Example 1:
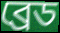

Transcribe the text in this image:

ব্ৰেড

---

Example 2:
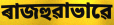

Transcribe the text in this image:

ৰাজহুৱাভাৱে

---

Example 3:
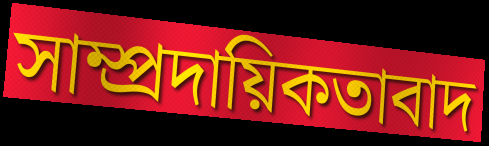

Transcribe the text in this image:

সাম্প্ৰদায়িকতাবাদ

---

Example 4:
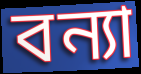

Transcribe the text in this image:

বন্যা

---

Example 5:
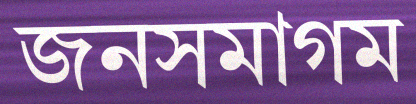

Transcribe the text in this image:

জনসমাগম